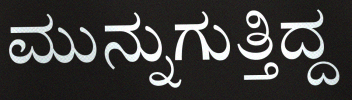
ಮುನ್ನುಗುತ್ತಿದ್ದ